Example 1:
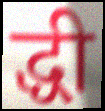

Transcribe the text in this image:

द्धी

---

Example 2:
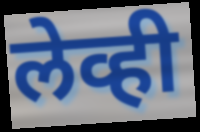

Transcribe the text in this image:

लेव्ही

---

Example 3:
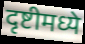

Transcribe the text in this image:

दृष्टीमध्ये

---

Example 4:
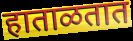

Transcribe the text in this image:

हाताळतात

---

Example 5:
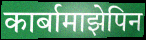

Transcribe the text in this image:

कार्बामाझेपिन